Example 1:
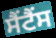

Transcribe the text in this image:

ਸੈਂਟੈਂਸ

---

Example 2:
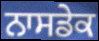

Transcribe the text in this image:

ਨਾਸਡੇਕ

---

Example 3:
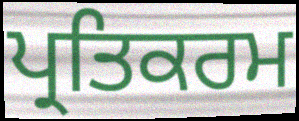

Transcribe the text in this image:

ਪ੍ਰਤਿਕਰਮ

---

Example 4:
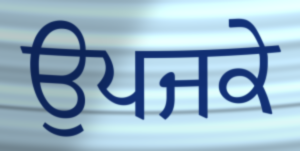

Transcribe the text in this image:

ਉਪਜਕੇ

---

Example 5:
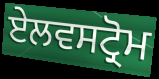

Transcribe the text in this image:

ਏਲਵਸਟ੍ਰੋਮ